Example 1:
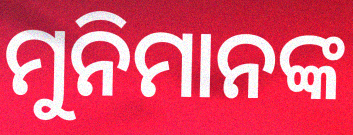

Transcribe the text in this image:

ମୁନିମାନଙ୍କ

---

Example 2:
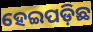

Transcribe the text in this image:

ହେଇପଡ଼ିଛ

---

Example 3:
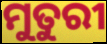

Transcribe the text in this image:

ମୁତୁରୀ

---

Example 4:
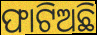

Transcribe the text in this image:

ଫାଟିଅଛି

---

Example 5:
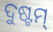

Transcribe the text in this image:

ଦୁଷ୍ଟମ୍